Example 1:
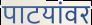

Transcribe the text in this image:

पाटयांवर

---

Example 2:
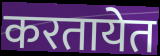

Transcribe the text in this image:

करतायेत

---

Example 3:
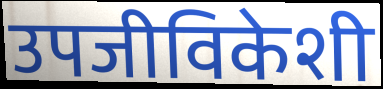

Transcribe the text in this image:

उपजीविकेशी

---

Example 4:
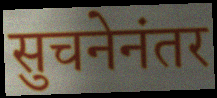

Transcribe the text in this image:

सुचनेनंतर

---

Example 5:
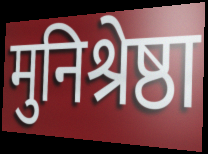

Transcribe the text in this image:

मुनिश्रेष्ठा